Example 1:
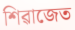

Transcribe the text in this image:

শিৱাজেত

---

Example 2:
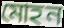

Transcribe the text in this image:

মোহন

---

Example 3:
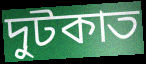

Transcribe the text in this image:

দুটকাত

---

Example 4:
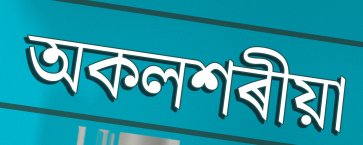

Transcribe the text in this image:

অকলশৰীয়া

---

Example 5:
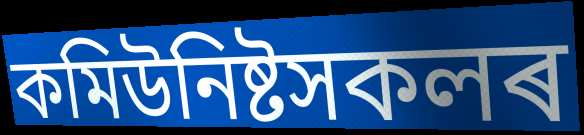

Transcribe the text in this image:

কমিউনিষ্টসকলৰ